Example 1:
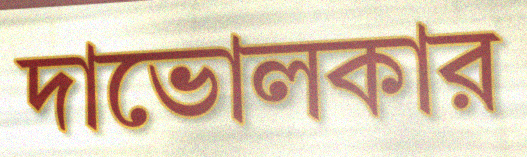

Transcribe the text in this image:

দাভোলকার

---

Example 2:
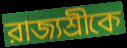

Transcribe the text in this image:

রাজ্যশ্রীকে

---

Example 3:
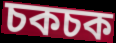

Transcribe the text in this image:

চকচক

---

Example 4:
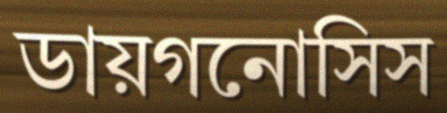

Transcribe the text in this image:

ডায়গনোসিস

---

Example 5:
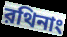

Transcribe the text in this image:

রথিনাং